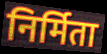
निर्मिता